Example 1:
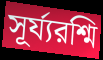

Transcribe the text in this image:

সূর্য্যরশ্মি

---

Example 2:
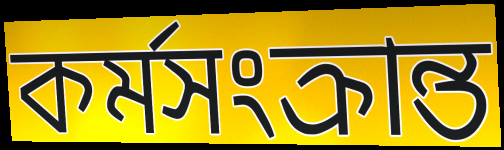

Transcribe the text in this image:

কর্মসংক্রান্ত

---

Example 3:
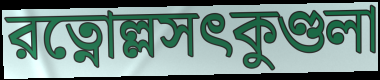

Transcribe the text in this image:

রত্নোল্লসৎকুণ্ডলা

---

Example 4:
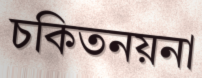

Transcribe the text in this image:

চকিতনয়না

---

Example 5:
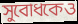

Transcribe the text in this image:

সুবোধকেও